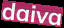
daiva